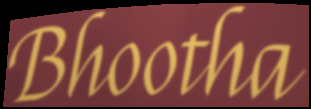
Bhootha